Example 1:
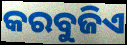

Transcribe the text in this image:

କରବୁଜିଏ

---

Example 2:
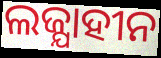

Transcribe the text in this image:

ଲଜ୍ଯାହୀନ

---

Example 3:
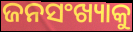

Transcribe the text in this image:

ଜନସଂଖ୍ୟାକୁ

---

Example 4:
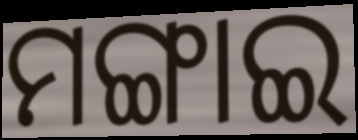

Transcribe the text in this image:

ମଙ୍ଗାଇ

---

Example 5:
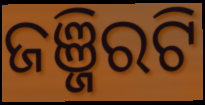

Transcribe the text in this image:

ଜଞ୍ଜିରଟି